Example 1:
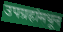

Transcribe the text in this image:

उपग्रहांमधून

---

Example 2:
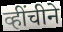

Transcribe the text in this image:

व्हींचीने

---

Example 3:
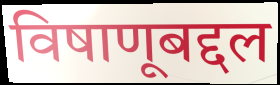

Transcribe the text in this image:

विषाणूबद्दल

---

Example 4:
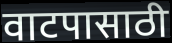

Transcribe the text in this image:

वाटपासाठी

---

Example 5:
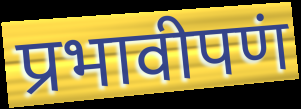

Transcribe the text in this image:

प्रभावीपणं